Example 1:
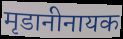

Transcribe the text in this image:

मृडानीनायक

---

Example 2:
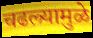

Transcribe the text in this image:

चढल्यामुळे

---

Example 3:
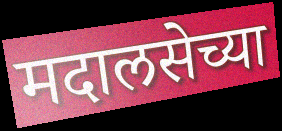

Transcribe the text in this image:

मदालसेच्या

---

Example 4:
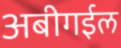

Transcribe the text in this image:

अबीगईल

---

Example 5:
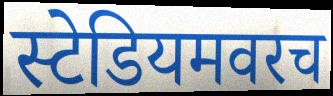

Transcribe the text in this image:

स्टेडियमवरच